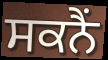
ਸਕਨੈਂ